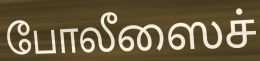
போலீஸைச்